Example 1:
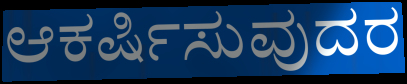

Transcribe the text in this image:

ಆಕರ್ಷಿಸುವುದರ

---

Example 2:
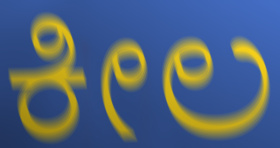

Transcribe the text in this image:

ಕೀಲ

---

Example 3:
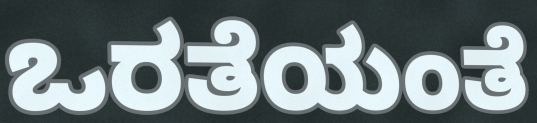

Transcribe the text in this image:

ಒರತೆಯಂತೆ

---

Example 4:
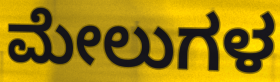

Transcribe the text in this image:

ಮೇಲುಗಳ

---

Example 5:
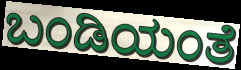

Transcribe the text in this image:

ಬಂಡಿಯಂತೆ